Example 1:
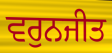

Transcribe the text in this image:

ਵਰੁਨਜੀਤ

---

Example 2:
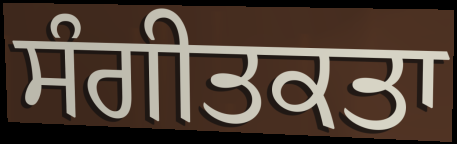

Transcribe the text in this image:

ਸੰਗੀਤਕਤਾ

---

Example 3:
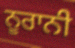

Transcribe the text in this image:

ਨੂਰਾਨੀ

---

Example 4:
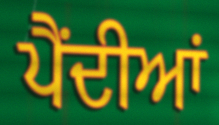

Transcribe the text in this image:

ਪੈਂਦੀਆਂ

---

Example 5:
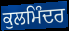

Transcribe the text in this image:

ਕੁਲਮਿੰਦਰ